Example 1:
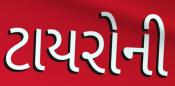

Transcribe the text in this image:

ટાયરોની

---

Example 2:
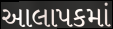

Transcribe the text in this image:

આલાપકમાં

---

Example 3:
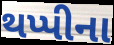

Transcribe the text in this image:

થપ્પીના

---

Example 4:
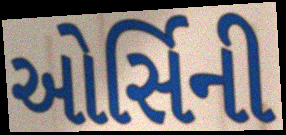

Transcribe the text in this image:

ઓર્સિની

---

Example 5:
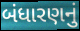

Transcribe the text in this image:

બંધારણનું